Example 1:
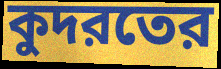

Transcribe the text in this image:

কুদরতের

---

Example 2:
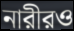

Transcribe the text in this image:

নারীরও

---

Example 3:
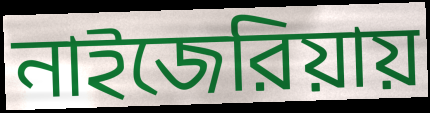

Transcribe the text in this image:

নাইজেরিয়ায়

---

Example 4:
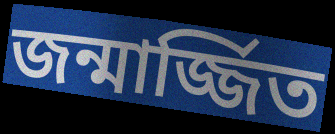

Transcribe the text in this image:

জন্মার্জ্জিত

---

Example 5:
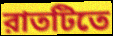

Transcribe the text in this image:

রাতটিতে